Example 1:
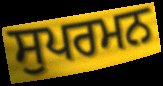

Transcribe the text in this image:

ਸੁਪਰਮਨ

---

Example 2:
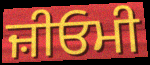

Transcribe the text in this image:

ਜ਼ੀਓਮੀ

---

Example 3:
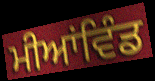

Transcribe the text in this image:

ਮੀਆਂਵਿੰਡ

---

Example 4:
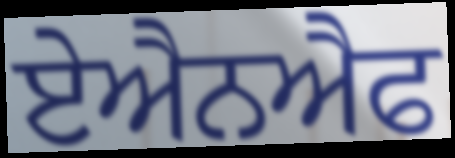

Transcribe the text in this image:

ਏਐਨਐਫ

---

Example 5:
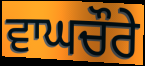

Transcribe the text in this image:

ਵਾਘਚੌਰੇ